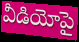
వీడియోపై